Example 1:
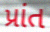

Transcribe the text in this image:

પ્રાંત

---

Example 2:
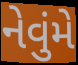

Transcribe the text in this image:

નેવુંમે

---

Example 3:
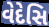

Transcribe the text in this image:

વેદેસિ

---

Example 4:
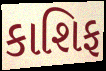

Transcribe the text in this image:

કાશિફ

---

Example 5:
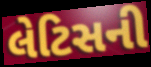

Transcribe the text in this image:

લેટિસની